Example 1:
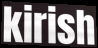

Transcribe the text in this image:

kirish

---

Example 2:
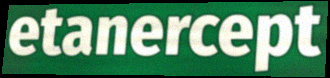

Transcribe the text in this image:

etanercept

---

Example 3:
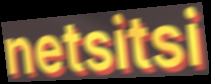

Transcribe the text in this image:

netsitsi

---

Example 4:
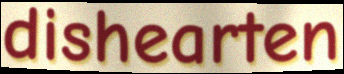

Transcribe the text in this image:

dishearten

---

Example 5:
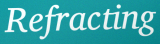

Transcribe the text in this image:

Refracting